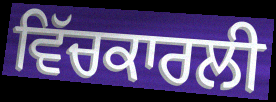
ਵਿੱਚਕਾਰਲੀ